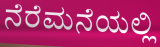
ನೆರೆಮನೆಯಲ್ಲಿ